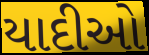
યાદીઓ